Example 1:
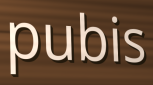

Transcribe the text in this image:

pubis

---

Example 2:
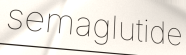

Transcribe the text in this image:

semaglutide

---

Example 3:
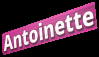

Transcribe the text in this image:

Antoinette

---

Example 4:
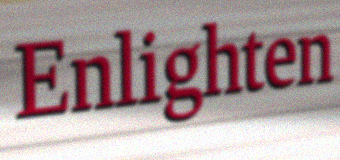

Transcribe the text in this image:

Enlighten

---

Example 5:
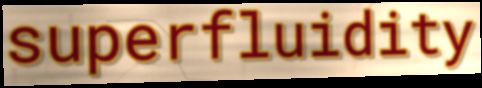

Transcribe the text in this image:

superfluidity